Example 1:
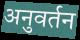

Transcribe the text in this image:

अनुवर्तन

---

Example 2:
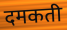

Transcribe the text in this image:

दमकती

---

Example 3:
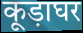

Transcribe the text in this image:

कूड़ाघर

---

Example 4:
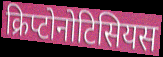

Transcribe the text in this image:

क्रिप्टोनोटिसियस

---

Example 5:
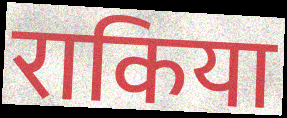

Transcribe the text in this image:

राकिया